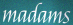
madams